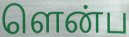
ளென்ப